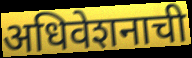
अधिवेशनाची